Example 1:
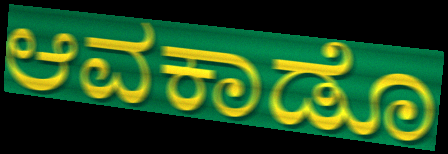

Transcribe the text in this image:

ಆವಕಾಡೊ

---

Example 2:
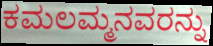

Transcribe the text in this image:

ಕಮಲಮ್ಮನವರನ್ನು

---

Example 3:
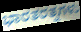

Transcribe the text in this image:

ಭಾರತರತ್ನಗಳು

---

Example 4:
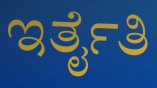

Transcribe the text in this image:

ಇರ್ತೈತಿ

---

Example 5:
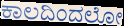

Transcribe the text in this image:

ಕಾಲದಿಂದಲೋ